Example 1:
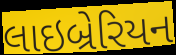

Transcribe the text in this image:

લાઇબ્રેરિયન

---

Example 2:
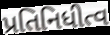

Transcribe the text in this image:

પ્રતિનિધીત્વ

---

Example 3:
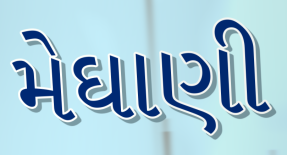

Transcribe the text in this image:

મેઘાણી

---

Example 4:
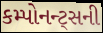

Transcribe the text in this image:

કમ્પોનન્ટ્સની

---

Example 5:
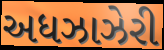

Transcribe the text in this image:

અધઝાઝેરી